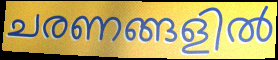
ചരണങ്ങളിൽ